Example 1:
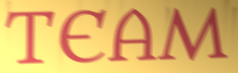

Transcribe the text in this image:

TEAM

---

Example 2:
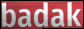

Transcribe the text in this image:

badak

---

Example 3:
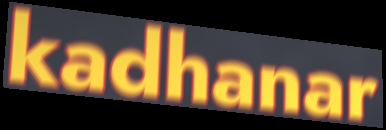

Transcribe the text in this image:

kadhanar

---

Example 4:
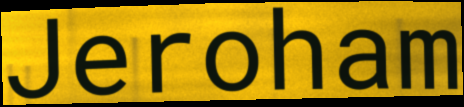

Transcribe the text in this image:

Jeroham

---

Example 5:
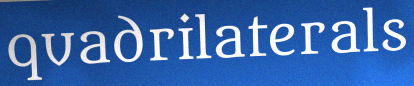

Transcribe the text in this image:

quadrilaterals